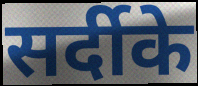
सर्दीके